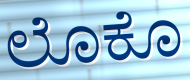
ಲೊಕೊ